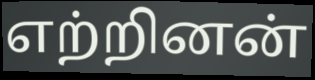
எற்றினன்